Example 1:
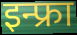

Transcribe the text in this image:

इन्फ्रा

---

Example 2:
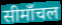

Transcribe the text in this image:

सीमाँचल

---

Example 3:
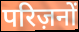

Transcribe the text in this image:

परिज़नों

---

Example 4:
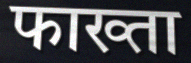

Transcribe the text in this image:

फाख्ता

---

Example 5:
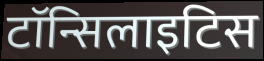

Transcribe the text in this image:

टॉन्सिलाइटिस